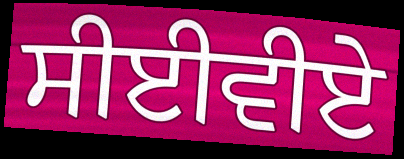
ਸੀਈਵੀਏ